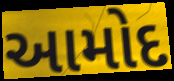
આમોદ